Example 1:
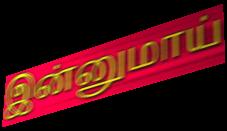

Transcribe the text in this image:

இன்னுமாய்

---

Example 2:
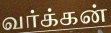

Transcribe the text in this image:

வர்க்கன்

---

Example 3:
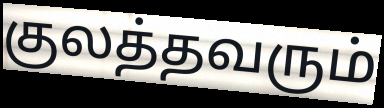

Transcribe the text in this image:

குலத்தவரும்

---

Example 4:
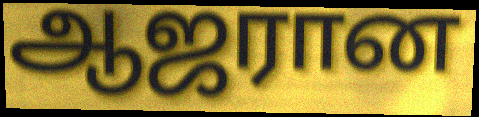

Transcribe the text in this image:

ஆஜரான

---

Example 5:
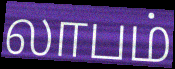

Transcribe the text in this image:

லாபம்